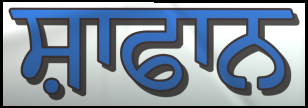
ਸ਼ਾਫਾਨ